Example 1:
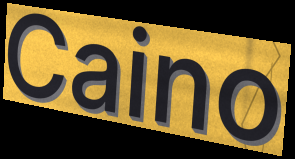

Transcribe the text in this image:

Caino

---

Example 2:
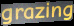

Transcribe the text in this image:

grazing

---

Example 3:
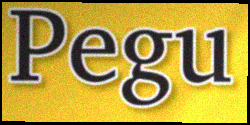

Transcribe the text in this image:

Pegu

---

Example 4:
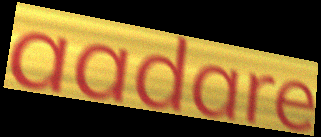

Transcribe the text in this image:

aadare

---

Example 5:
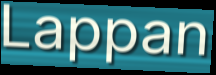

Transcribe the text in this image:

Lappan